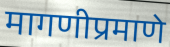
मागणीप्रमाणे